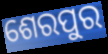
ଶେରପୁର